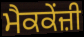
ਮੈਕਕੇਂਜ਼ੀ